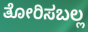
ತೋರಿಸಬಲ್ಲ